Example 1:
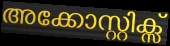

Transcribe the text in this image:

അക്കോസ്റ്റിക്സ്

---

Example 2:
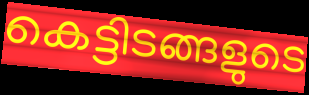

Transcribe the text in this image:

കെട്ടിടങ്ങളുടെ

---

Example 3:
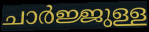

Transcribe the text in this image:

ചാർജ്ജുള്ള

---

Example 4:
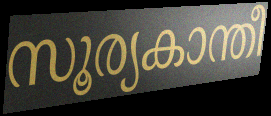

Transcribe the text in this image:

സൂര്യകാന്തീ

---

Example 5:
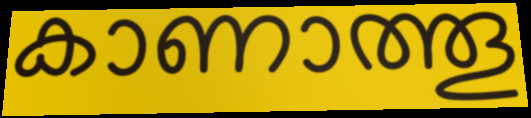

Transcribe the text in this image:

കാണാത്തൂ